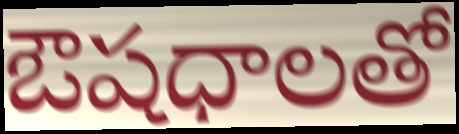
ఔషధాలతో